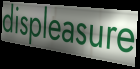
displeasure